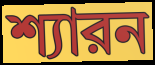
শ্যারন